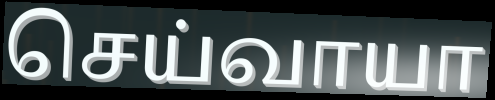
செய்வாயா